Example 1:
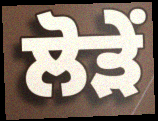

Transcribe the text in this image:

ਲੋੜੇਂ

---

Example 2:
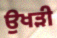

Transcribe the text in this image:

ਉਖੜੀ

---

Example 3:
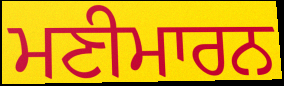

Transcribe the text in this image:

ਮਣੀਮਾਰਨ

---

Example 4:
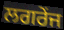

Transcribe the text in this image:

ਲਗਰੇਂਜ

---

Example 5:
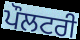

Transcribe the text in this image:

ਪੌਲਟਰੀ